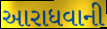
આરાધવાની